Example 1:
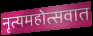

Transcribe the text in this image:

नृत्यमहोत्सवात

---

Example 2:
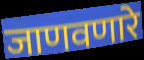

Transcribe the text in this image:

जाणवणारे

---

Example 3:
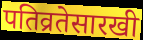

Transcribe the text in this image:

पतिव्रतेसारखी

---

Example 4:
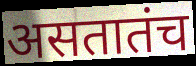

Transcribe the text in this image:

असतातंच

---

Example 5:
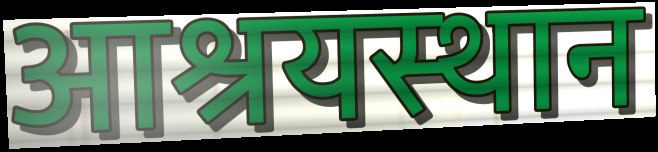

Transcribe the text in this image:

आश्रयस्थान